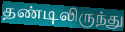
தண்டிலிருந்து